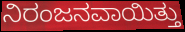
ನಿರಂಜನವಾಯಿತ್ತು